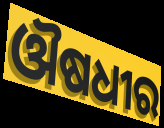
ଔଷଧୀର